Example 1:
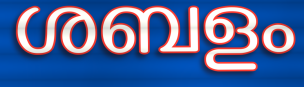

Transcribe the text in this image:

ശബളം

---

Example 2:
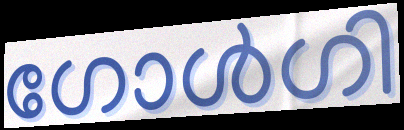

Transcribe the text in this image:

ഗോൾഗി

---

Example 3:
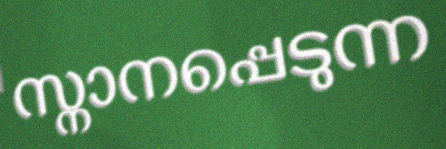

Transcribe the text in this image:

സ്നാനപ്പെടുന്ന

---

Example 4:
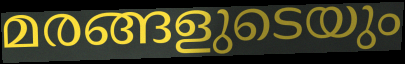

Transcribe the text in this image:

മരങ്ങളുടെയും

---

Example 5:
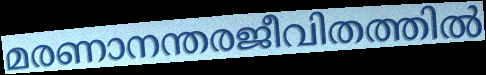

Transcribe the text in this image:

മരണാനന്തരജീവിതത്തിൽ